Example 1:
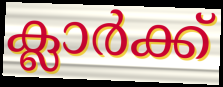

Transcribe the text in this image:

ക്ലാർക്ക്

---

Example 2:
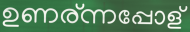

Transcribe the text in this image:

ഉണര്ന്നപ്പോള്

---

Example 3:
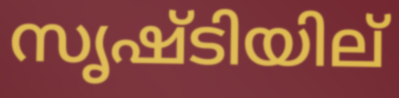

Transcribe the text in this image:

സൃഷ്ടിയില്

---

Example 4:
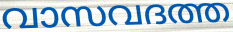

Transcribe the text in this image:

വാസവദത്ത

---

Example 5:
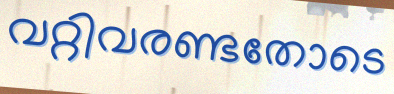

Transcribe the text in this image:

വറ്റിവരണ്ടതോടെ